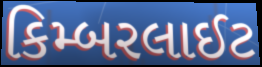
કિમ્બરલાઈટ